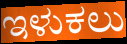
ಇಳುಕಲು